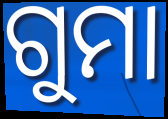
ଗୁମା